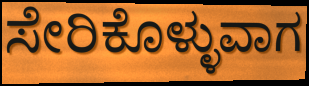
ಸೇರಿಕೊಳ್ಳುವಾಗ